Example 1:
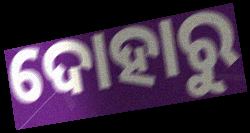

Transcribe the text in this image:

ଦୋହାରୁ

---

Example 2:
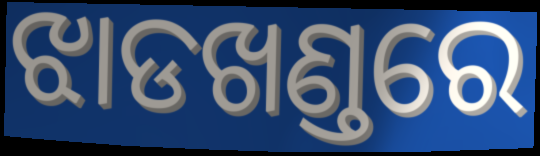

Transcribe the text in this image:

ଝାଡଖଣ୍ଡରେ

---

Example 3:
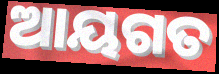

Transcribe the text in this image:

ଆୟଗତ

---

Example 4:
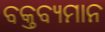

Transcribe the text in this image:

ବକ୍ତବ୍ୟମାନ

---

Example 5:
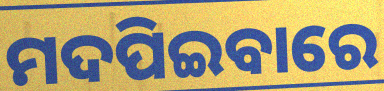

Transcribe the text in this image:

ମଦପିଇବାରେ